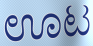
ಊಟ